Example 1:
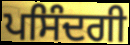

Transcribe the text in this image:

ਪਸਿੰਦਗੀ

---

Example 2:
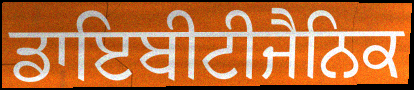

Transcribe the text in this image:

ਡਾਇਬੀਟੀਜੈਨਿਕ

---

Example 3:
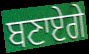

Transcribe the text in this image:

ਬਣਾਏਗੇ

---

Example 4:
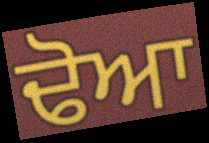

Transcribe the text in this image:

ਢੋਆ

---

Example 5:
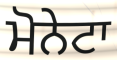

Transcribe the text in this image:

ਮੋਨੇਟਾ